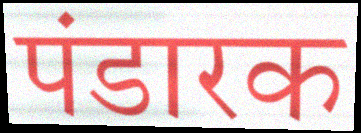
पंडारक